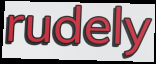
rudely